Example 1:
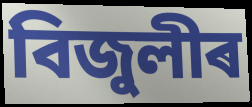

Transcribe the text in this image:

বিজুলীৰ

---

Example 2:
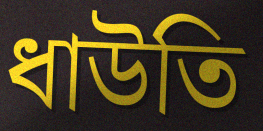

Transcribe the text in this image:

ধাউতি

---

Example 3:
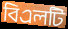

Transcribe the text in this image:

বিএলটি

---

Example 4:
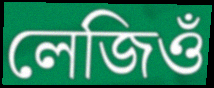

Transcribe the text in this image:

লেজিওঁ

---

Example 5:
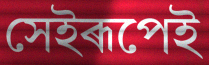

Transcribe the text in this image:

সেইৰূপেই